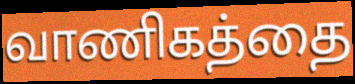
வாணிகத்தை